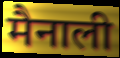
मैनाली